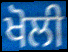
ਖੋਲੀ